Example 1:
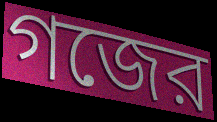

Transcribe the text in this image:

গজের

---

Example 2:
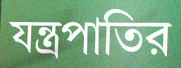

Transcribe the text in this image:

যন্ত্রপাতির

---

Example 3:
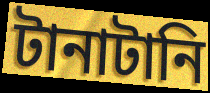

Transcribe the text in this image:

টানাটানি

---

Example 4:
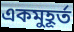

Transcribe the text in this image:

একমুহূর্ত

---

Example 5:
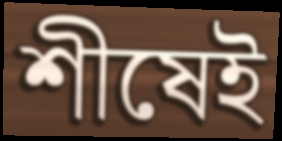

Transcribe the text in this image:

শীষেই